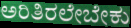
ಅರಿತಿರಲೇಬೇಕು